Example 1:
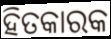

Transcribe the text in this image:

ହିତକାରକ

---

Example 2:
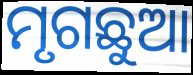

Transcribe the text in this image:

ମୃଗଛୁଆ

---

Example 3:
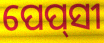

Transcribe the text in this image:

ପେପ୍‌ସୀ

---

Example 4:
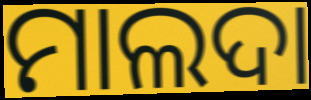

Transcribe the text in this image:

ମାଲଦା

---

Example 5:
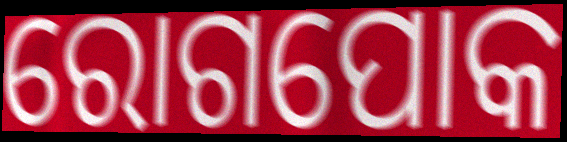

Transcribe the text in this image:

ରୋଗପୋକ